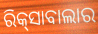
ରିକ୍‌ସାବାଲାର